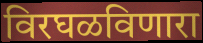
विरघळविणारा